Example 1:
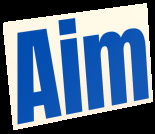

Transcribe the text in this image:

Aim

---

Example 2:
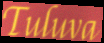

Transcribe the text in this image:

Tuluva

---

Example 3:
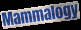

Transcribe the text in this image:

Mammalogy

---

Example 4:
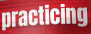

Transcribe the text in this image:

practicing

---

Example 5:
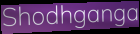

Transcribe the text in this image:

Shodhganga